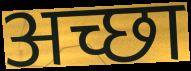
अच्छा